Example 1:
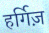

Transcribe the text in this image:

हर्गिज़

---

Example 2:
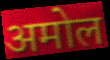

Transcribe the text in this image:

अमोल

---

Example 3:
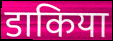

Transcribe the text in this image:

डाकिया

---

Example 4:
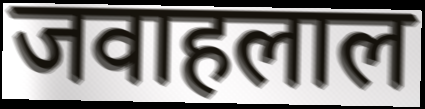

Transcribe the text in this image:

जवाहलाल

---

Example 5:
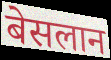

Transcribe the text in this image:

बेसलान